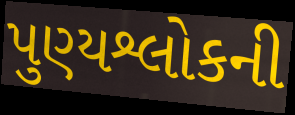
પુણ્યશ્લોકની